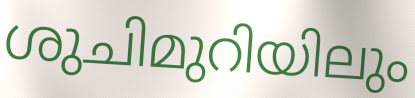
ശുചിമുറിയിലും